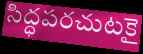
సిద్ధపరచుటకై